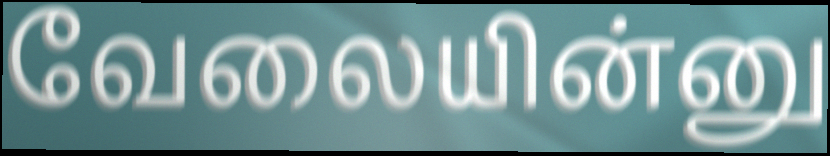
வேலையின்னு